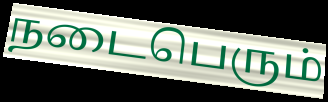
நடைபெரும்